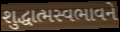
શુદ્ધાત્મસ્વભાવને